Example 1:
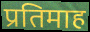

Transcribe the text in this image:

प्रतिमाह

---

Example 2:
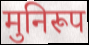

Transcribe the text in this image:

मुनिरूप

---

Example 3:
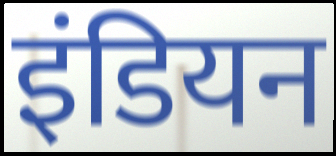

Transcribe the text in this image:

इंडियन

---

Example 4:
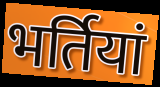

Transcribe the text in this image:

भर्तियां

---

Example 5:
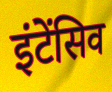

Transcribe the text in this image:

इंटेंसिव